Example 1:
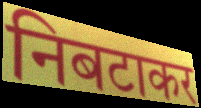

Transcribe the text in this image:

निबटाकर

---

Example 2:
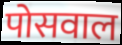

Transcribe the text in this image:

पोसवाल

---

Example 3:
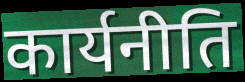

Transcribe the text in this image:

कार्यनीति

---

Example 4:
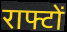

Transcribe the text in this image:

राफ्टों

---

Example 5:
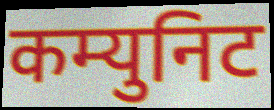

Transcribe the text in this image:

कम्युनिट